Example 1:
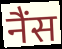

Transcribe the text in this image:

नैंस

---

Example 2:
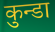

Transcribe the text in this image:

कुन्डा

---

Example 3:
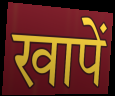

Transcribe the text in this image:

खापें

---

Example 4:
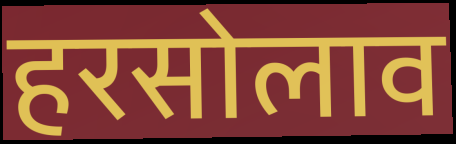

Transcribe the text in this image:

हरसोलाव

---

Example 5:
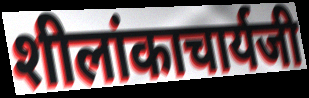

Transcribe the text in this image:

शीलांकाचार्यजी